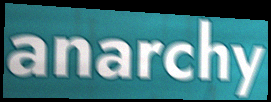
anarchy